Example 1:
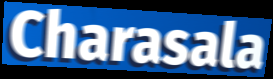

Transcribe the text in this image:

Charasala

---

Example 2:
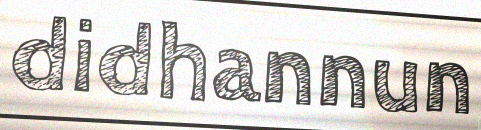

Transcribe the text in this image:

didhannun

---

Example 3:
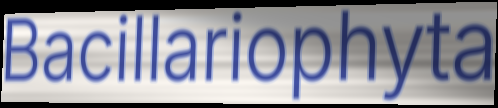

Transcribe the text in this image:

Bacillariophyta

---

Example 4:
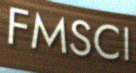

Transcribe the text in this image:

FMSCI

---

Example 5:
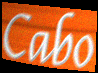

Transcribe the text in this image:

Cabo